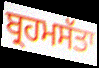
ਬ੍ਰਹਮਸੱਤਾ